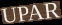
UPAR